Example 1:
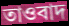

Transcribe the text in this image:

তাওবাদ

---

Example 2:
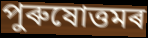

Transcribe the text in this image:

পুৰুষোত্তমৰ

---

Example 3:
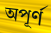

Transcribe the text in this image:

অপূৰ্ণ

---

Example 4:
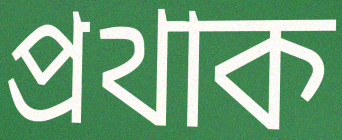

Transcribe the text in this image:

প্ৰথাক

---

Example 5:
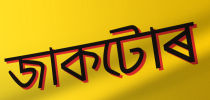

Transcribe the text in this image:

জাকটোৰ